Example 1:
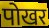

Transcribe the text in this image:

पोखर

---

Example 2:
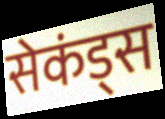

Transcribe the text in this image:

सेकंड्स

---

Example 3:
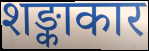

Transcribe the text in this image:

शङ्काकार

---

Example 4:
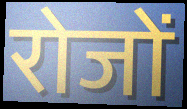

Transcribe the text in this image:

रोजों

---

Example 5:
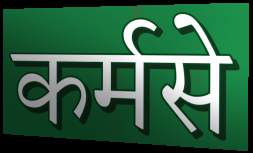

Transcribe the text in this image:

कर्मसे